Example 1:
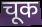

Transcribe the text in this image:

चूक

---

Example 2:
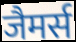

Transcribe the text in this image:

जैमर्स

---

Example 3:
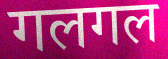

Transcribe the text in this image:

गलगल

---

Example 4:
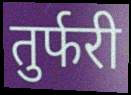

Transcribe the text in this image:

तुर्फरी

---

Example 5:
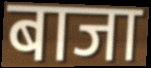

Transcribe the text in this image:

बाजा